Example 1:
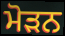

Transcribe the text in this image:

ਮੋੜਨ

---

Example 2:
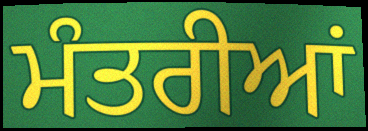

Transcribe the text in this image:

ਮੰਤਰੀਆਂ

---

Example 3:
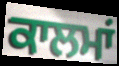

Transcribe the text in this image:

ਕਾਲਮਾਂ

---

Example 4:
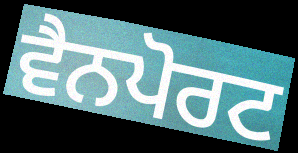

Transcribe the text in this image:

ਵੈਨਪੋਰਟ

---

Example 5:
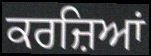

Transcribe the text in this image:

ਕਰਜ਼ਿਆਂ